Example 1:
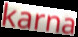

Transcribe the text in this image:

karna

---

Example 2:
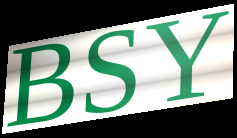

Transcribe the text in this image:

BSY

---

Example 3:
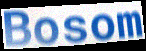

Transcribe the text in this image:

Bosom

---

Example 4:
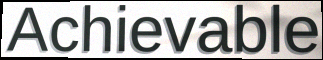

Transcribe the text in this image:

Achievable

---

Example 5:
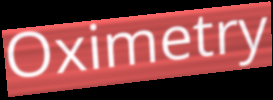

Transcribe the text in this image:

Oximetry